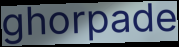
ghorpade